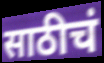
साठीचं